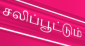
சலிப்பூட்டும்